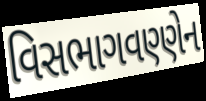
વિસભાગવણ્ણેન